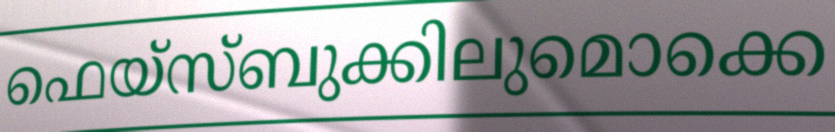
ഫെയ്സ്ബുക്കിലുമൊക്കെ